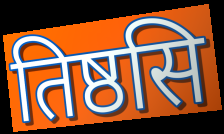
तिष्ठसि